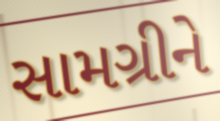
સામગ્રીને